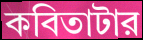
কবিতাটার